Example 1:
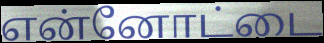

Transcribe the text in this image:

என்னோட்டை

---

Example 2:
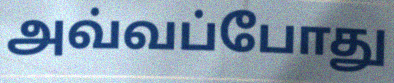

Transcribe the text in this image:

அவ்வப்போது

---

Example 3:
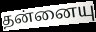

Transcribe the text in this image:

தன்னையு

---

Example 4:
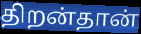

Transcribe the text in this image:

திறன்தான்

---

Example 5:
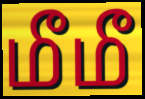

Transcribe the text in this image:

மீமீ